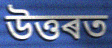
উত্তৰত